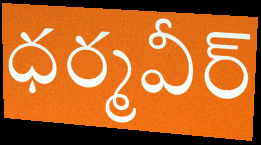
ధర్మవీర్